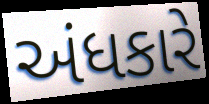
અંધકારે